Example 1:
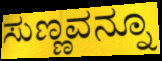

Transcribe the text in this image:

ಸುಣ್ಣವನ್ನೂ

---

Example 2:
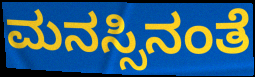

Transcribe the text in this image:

ಮನಸ್ಸಿನಂತೆ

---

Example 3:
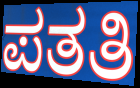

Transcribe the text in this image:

ಪತತಿ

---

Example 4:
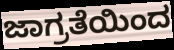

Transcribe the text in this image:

ಜಾಗ್ರತೆಯಿಂದ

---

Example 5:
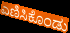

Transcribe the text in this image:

ಎಣಿಸಿಕೊಂಡು